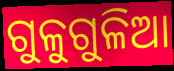
ଗୁଳୁଗୁଳିଆ